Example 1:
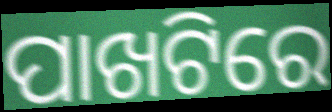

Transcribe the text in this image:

ପାଖଟିରେ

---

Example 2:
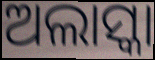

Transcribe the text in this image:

ଅଲାସ୍କା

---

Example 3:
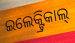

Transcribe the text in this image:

ଇଲେକ୍ଟ୍ରିକାଲ୍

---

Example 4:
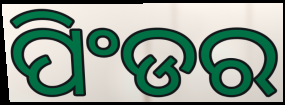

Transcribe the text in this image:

ପିଂଡର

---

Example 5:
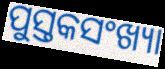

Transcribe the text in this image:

ପୁସ୍ତକସଂଖ୍ୟା